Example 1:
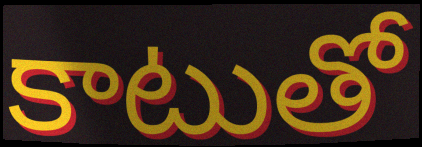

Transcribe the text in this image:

కాటుతో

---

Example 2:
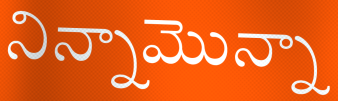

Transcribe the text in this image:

నిన్నామొన్నా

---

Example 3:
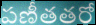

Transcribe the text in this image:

పణీతతరో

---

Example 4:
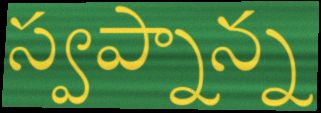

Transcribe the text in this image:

స్వప్నాన్న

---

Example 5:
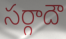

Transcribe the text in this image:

సర్గాదౌ